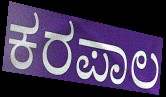
ಕರಪಾಲ